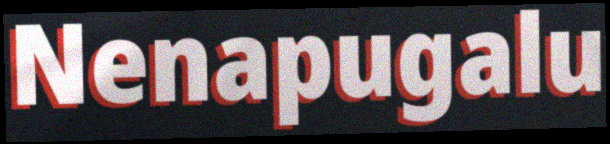
Nenapugalu